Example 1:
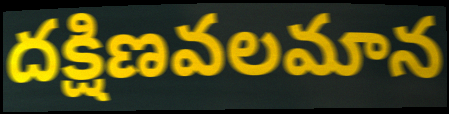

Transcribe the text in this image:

దక్షిణవలమాన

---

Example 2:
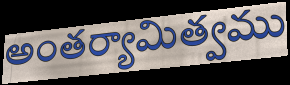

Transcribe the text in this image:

అంతర్యామిత్వము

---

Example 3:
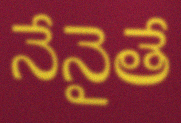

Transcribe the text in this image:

నేనైతే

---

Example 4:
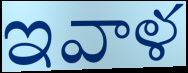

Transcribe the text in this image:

ఇవాళ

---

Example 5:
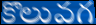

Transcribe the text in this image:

కొలువగ